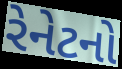
રેનેટનો